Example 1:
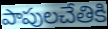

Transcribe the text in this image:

పాపులచేతికి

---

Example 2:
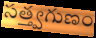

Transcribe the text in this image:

సత్త్వగుణం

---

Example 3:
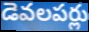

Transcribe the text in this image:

డెవలపర్లు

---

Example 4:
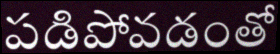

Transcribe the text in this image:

పడిపోవడంతో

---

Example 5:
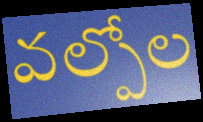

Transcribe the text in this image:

వల్పోల